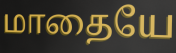
மாதையே